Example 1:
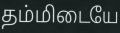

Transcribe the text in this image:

தம்மிடையே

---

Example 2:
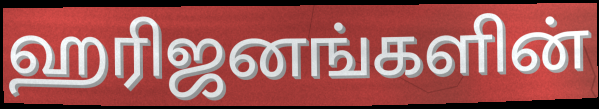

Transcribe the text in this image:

ஹரிஜனங்களின்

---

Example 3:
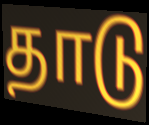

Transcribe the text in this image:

தாடு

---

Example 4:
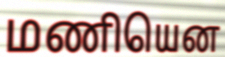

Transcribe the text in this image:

மணியென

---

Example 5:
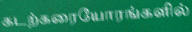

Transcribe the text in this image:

கடற்கரையோரங்களில்